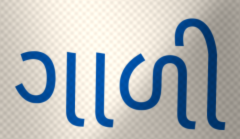
ગાળી